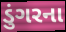
ડુંગરના